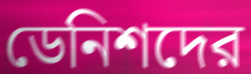
ডেনিশদের